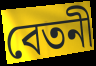
বেতনী